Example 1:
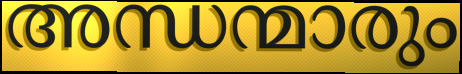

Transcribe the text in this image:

അന്ധന്മാരും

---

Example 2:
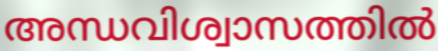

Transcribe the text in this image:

അന്ധവിശ്വാസത്തിൽ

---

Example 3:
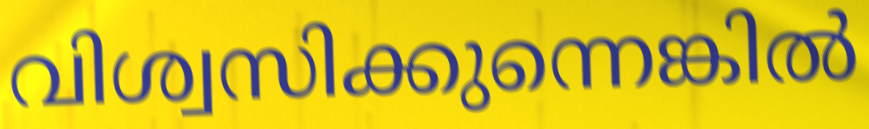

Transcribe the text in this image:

വിശ്വസിക്കുന്നെങ്കിൽ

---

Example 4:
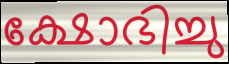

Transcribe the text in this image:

ക്ഷോഭിച്ചു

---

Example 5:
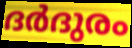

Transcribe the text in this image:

ദർദുരം